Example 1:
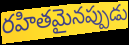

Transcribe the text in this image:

రహితమైనప్పుడు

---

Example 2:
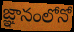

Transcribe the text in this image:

జ్ఞానంలోనో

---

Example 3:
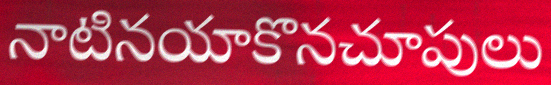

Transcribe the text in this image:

నాటినయాకొనచూపులు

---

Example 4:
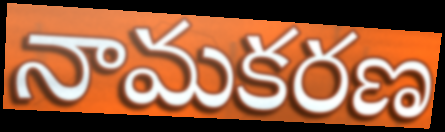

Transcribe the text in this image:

నామకరణ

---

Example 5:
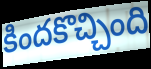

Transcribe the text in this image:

కిందకొచ్చింది